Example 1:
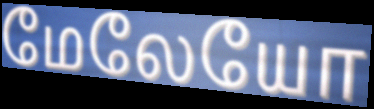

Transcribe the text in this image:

மேலேயோ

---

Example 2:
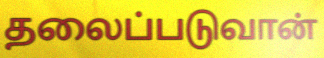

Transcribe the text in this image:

தலைப்படுவான்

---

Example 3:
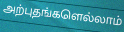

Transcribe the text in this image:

அற்புதங்களெல்லாம்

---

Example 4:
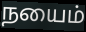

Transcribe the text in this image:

நயைம்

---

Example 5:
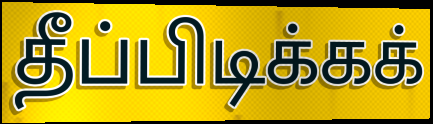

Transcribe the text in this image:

தீப்பிடிக்கக்